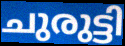
ചുരുട്ടി